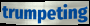
trumpeting